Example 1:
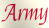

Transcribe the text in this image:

Army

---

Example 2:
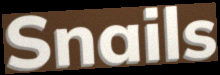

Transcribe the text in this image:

Snails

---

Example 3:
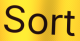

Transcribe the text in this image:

Sort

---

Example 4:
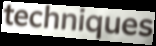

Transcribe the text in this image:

techniques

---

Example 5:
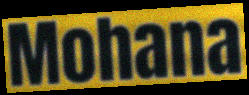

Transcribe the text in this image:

Mohana